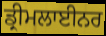
ਡ੍ਰੀਮਲਾਈਨਰ